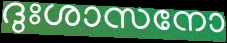
ദുഃശാസനോ